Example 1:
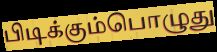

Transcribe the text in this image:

பிடிக்கும்பொழுது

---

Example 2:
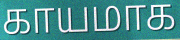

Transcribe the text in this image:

காயமாக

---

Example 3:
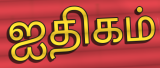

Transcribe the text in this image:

ஐதிகம்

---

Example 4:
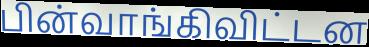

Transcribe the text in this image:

பின்வாங்கிவிட்டன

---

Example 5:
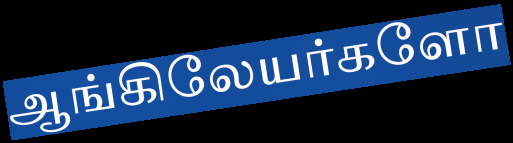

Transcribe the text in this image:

ஆங்கிலேயர்களோ